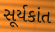
સૂર્યકાંત